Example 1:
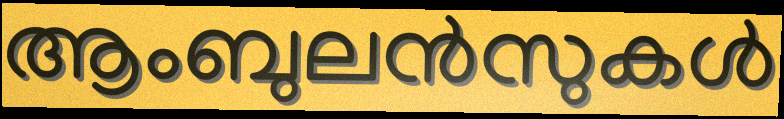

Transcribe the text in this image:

ആംബുലൻസുകൾ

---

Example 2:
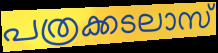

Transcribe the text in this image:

പത്രക്കടലാസ്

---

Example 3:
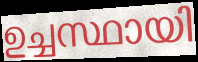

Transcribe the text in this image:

ഉച്ചസ്ഥായി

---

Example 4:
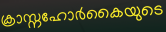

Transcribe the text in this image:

ക്രാസ്നഹോർകൈയുടെ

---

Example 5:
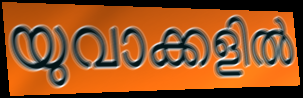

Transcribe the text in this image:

യുവാക്കളിൽ